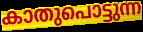
കാതുപൊട്ടുന്ന